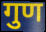
गुण